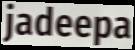
jadeepa